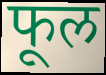
फूल